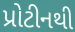
પ્રોટીનથી